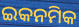
ଇକନମିକ